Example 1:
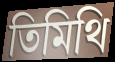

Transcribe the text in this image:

তিমিথি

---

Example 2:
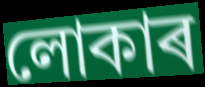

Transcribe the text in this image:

লোকাৰ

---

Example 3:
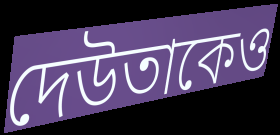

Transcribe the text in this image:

দেউতাকেও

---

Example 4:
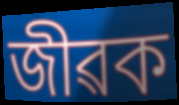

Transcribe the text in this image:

জীৱক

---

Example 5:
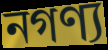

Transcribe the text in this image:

নগণ্য